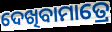
ଦେଖିବାମାତ୍ରେ